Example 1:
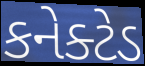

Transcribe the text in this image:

કનેક્ટેડ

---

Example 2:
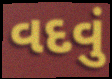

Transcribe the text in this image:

વદવું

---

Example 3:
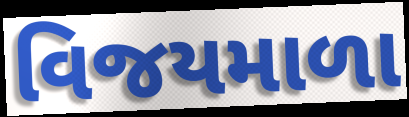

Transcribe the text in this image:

વિજયમાળા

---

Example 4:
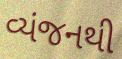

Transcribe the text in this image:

વ્યંજનથી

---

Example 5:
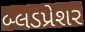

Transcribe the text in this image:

બ્લડપ્રેશર